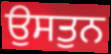
ਉਸਤੁਨ